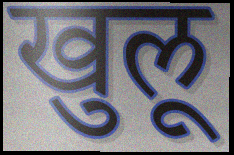
खुलू